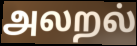
அலறல்